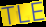
TLE